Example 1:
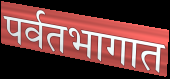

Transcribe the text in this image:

पर्वतभागात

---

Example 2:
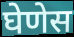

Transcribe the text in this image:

घेणेस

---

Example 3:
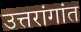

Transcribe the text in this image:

उत्तरांगांत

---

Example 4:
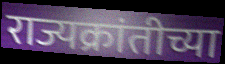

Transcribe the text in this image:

राज्यक्रांतीच्या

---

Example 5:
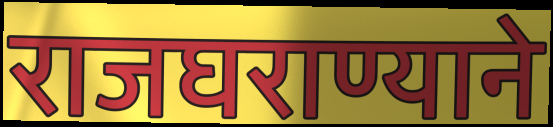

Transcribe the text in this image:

राजघराण्याने